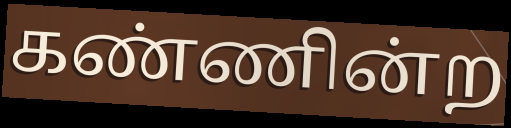
கண்ணின்ற